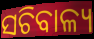
ସଚିବାଳ୍ୟ